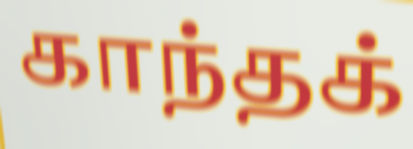
காந்தக்